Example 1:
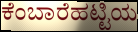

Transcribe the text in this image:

ಕೆಂಬಾರೆಹಟ್ಟಿಯ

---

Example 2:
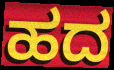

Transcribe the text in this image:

ಹದ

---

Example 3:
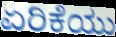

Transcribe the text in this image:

ಏರಿಕೆಯು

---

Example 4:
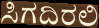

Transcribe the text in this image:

ಸಿಗದಿರಲಿ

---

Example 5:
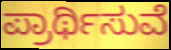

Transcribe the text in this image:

ಪ್ರಾರ್ಥಿಸುವೆ